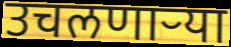
उचलणाऱ्या